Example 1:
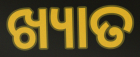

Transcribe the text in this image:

ଖ୍ୟାତ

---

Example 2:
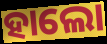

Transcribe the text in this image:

ହାଲୋ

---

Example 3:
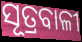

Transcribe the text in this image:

ସୂତ୍ରବାଳୀ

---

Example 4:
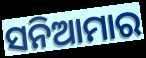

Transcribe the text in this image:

ସନିଆମାର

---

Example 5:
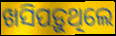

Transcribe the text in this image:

ଖସିପଡ଼ୁଥିଲେ